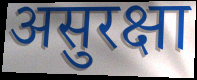
असुरक्षा